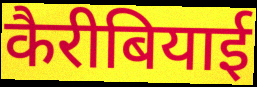
कैरीबियाई